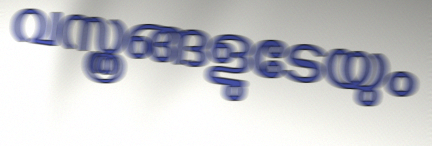
വസ്ത്രങ്ങളുടേയും